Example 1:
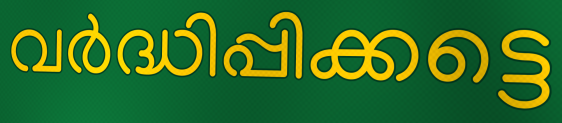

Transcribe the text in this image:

വർദ്ധിപ്പിക്കട്ടെ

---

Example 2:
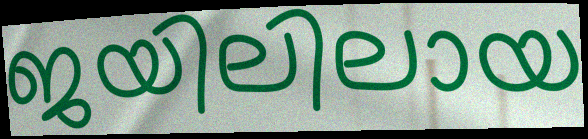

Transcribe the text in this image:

ജയിലിലായ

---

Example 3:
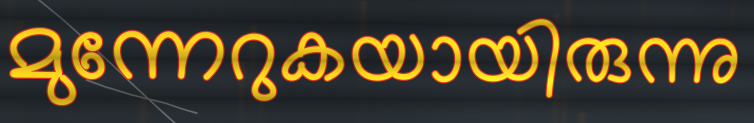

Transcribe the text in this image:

മുന്നേറുകയായിരുന്നു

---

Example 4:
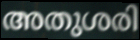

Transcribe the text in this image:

അതുശരി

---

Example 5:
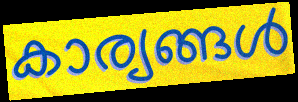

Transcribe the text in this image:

കാര്യങ്ങൾ